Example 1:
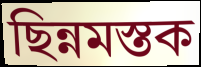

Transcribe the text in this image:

ছিন্নমস্তক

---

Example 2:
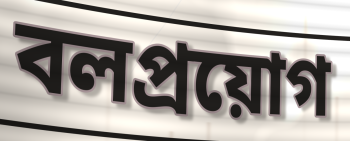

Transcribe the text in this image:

বলপ্ৰয়োগ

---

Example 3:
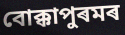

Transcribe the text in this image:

বোক্কাপুৰমৰ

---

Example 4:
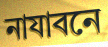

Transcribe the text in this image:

নাযাবনে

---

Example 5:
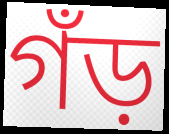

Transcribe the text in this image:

গঁড়